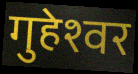
गुहेश्वर